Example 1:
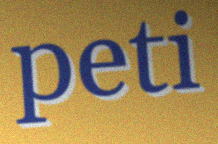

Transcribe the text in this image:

peti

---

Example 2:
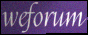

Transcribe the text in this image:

weforum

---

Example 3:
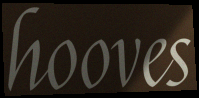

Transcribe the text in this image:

hooves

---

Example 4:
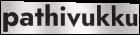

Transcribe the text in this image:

pathivukku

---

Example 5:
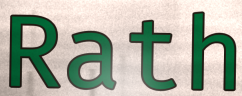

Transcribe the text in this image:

Rath